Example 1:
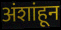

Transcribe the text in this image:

अंशांहून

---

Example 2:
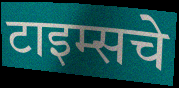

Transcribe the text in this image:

टाइम्सचे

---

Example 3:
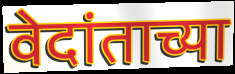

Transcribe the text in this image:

वेदांताच्या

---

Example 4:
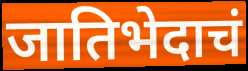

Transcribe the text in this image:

जातिभेदाचं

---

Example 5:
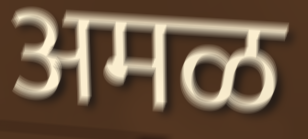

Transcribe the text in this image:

अमळ